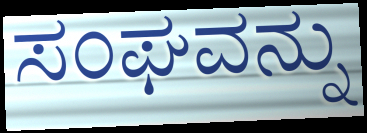
ಸಂಘವನ್ನು